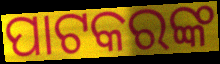
ପାଟକରଙ୍କ